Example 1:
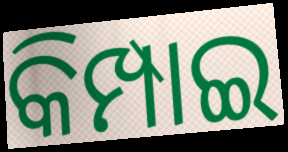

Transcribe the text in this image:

କିମ୍ପାଇ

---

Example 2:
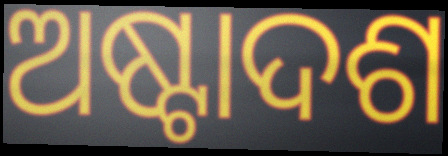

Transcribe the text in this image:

ଅଷ୍ଟାଦଶ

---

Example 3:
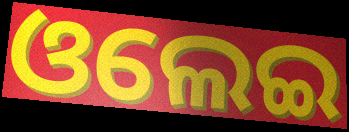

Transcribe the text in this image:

ଓଲେଇ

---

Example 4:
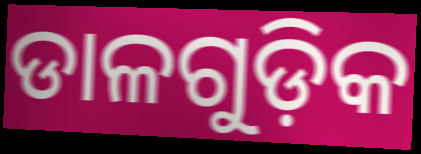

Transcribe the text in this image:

ଡାଳଗୁଡ଼ିକ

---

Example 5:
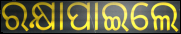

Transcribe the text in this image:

ରକ୍ଷାପାଇଲେ